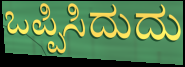
ಒಪ್ಪಿಸಿದುದು